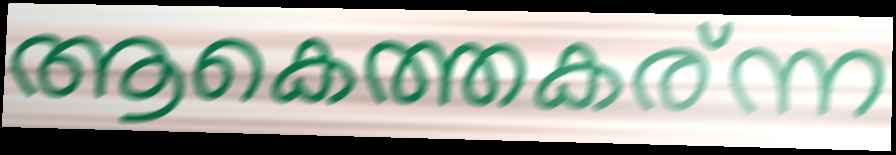
ആകെത്തകര്ന്ന